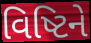
વિષ્ટિને